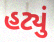
હટ્યું